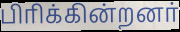
பிரிக்கின்றனர்